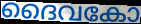
ദൈവകോ